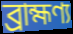
ব্ৰাহ্মণ্য